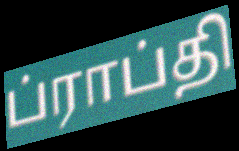
ப்ராப்தி